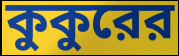
কুকুরের